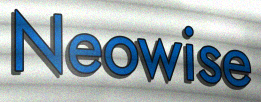
Neowise